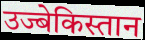
उज्बेकिस्तान